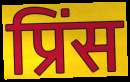
प्रिंस